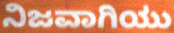
ನಿಜವಾಗಿಯು